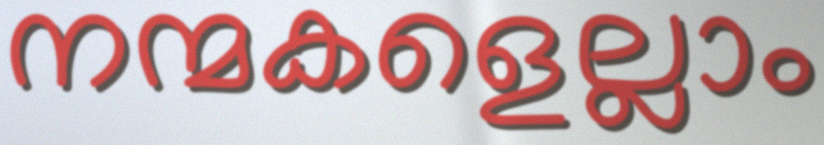
നന്മകളെല്ലാം